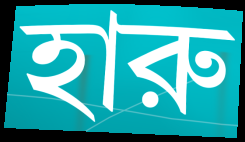
হারু